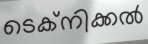
ടെക്നിക്കൽ